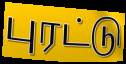
புரட்டு